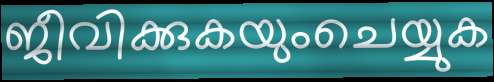
ജീവിക്കുകയുംചെയ്യുക